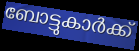
ബോട്ടുകാർക്ക്